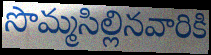
సొమ్మసిల్లినవారికి